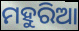
ମହୁରିଆ